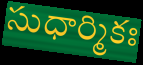
సుధార్మికః